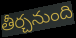
తీర్చనుంది